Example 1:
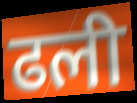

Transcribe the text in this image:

ढली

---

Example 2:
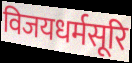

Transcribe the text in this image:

विजयधर्मसूरि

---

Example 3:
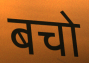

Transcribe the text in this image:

बचो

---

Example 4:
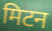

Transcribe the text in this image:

मिटन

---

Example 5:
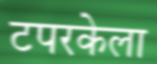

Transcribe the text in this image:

टपरकेला